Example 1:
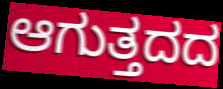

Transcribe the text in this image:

ಆಗುತ್ತದದ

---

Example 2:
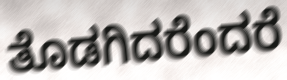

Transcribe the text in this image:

ತೊಡಗಿದರೆಂದರೆ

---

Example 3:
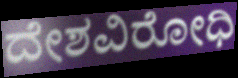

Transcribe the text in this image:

ದೇಶವಿರೋಧಿ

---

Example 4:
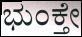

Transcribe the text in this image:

ಭುಂಕ್ತೇ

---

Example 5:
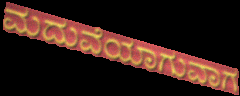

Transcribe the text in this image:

ಮದುವೆಯಾಗುವಾಗ